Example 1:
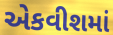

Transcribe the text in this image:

એકવીશમાં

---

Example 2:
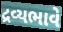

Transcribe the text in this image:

દ્રવ્યભાવે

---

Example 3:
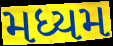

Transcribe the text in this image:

મધ્યમ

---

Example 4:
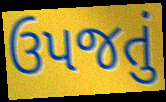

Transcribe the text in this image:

ઉપજતું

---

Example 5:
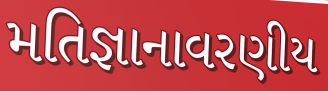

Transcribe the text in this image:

મતિજ્ઞાનાવરણીય